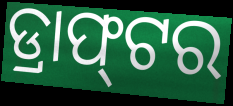
ଡ୍ରାଫ୍‌ଟର